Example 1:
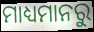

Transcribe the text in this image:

ମାଧ୍ୟମାନରୁ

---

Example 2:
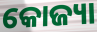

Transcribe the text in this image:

କୋଜ୍ୟା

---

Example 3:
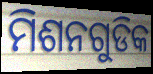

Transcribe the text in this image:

ମିଶନଗୁଡିକ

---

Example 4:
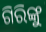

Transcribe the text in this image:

ଗିରିଙ୍କୁ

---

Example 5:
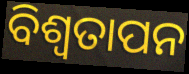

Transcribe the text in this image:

ବିଶ୍ବତାପନ